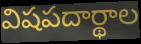
విషపదార్థాల